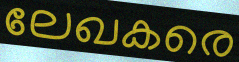
ലേഖകരെ